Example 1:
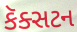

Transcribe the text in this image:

કૅક્સટન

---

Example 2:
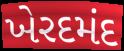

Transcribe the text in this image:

ખેરદમંદ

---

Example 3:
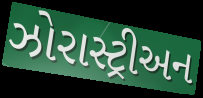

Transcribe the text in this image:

ઝોરાસ્ટ્રીઅન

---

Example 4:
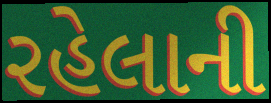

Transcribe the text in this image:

રહેલાની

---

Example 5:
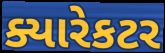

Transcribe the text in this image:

ક્યારેકટર